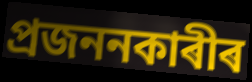
প্ৰজননকাৰীৰ